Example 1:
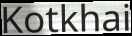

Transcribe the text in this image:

Kotkhai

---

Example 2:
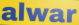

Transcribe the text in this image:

alwar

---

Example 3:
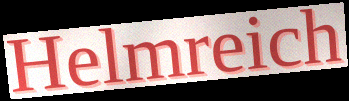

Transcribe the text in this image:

Helmreich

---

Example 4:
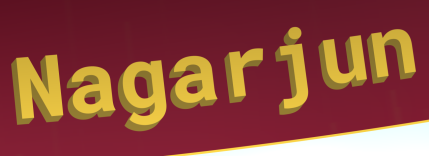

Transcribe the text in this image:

Nagarjun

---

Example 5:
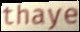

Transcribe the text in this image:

thaye